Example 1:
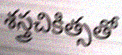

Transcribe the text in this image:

శస్త్రచికిత్సతో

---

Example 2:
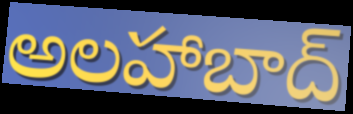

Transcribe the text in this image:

అలహాబాద్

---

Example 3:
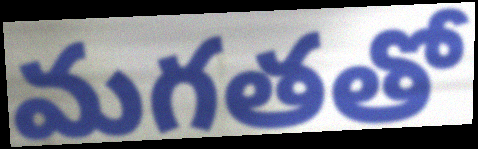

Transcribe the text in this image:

మగతతో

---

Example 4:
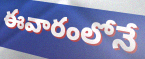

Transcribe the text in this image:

ఈవారంలోనే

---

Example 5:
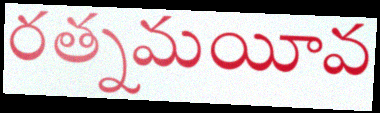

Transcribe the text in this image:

రత్నమయీవ